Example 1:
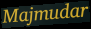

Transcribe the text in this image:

Majmudar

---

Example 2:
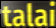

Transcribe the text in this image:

talai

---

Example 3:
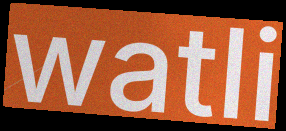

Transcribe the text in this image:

watli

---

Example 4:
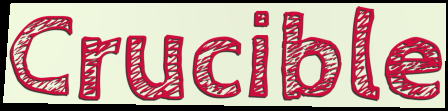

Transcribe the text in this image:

Crucible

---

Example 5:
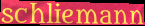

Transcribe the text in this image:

schliemann